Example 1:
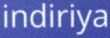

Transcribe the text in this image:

indiriya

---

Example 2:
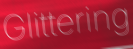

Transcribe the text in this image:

Glittering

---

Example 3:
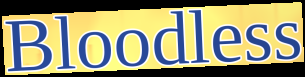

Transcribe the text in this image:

Bloodless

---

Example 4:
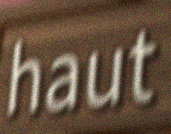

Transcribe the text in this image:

haut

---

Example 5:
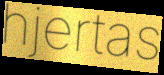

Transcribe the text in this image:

hjertas